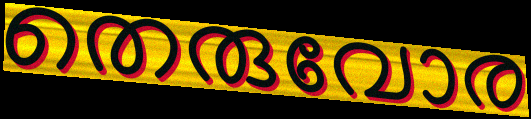
തെരുവോര